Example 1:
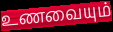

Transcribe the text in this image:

உணவையும்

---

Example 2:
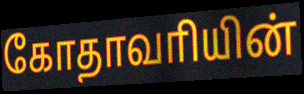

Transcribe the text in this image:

கோதாவரியின்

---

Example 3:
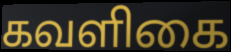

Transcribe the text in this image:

கவளிகை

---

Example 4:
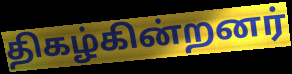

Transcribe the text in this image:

திகழ்கின்றனர்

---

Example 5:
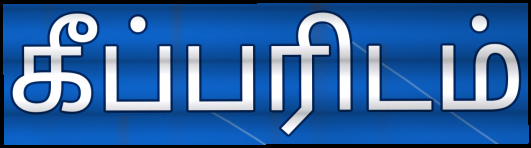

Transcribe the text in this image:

கீப்பரிடம்